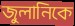
জুলানিকে